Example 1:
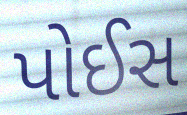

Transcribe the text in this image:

પોઈસ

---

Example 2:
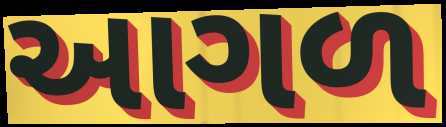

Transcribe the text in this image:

આગળ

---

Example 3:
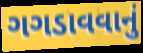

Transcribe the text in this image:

ગગડાવવાનું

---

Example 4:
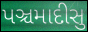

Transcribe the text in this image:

પઞ્ચમાદીસુ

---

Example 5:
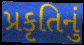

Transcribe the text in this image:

પ્રકૃતિનું